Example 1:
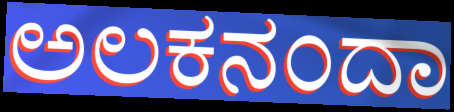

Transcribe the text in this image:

ಅಲಕನಂದಾ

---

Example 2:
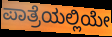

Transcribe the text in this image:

ಪಾತ್ರೆಯಲ್ಲಿಯೇ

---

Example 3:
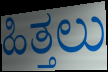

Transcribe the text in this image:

ಹಿತ್ತಲು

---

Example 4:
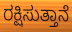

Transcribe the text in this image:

ರಕ್ಷಿಸುತ್ತಾನೆ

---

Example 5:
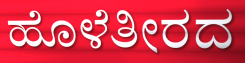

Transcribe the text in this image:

ಹೊಳೆತೀರದ